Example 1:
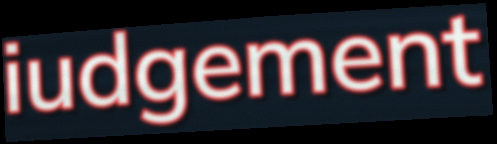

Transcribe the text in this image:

iudgement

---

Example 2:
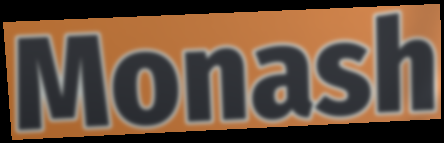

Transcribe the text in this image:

Monash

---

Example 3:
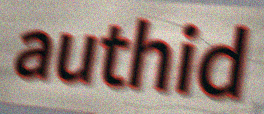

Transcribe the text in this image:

authid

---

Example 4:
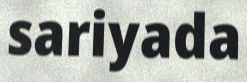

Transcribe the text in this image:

sariyada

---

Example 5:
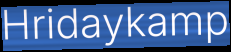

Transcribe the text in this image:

Hridaykamp